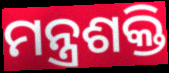
ମନ୍ତ୍ରଶକ୍ତି